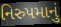
નિરુપમાનું